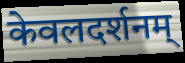
केवलदर्शनम्